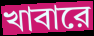
খাবারে